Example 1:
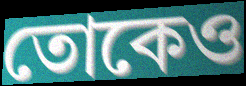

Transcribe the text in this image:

তোকেও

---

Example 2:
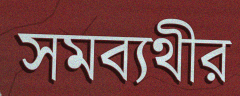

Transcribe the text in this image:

সমব্যথীর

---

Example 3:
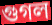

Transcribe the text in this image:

গুগল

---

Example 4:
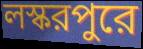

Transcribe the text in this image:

লস্করপুরে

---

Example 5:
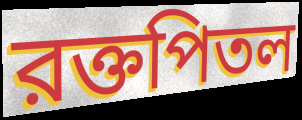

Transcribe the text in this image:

রক্তপিতল